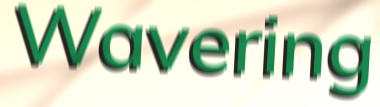
Wavering